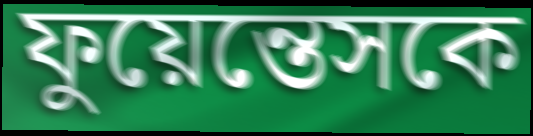
ফুয়েন্তেসকে